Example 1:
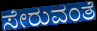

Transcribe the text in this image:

ಸೇರುವಂತೆ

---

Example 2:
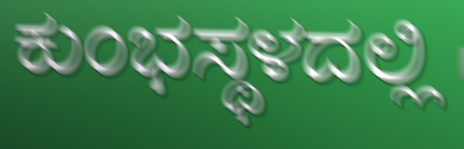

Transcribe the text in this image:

ಕುಂಭಸ್ಥಳದಲ್ಲಿ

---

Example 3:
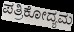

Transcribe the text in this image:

ಪತ್ರಿಕೋದ್ಯಮ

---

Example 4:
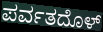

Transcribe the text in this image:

ಪರ್ವತದೊಳ್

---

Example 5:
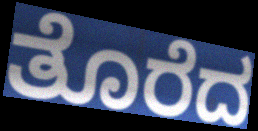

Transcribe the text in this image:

ತೊರೆದ